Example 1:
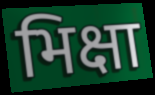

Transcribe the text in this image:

भिक्षा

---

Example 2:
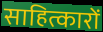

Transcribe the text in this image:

साहित्कारों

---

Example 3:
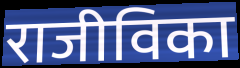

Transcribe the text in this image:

राजीविका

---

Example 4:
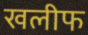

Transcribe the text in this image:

खलीफ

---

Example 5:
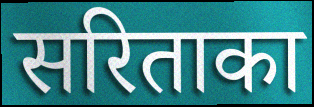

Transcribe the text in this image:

सरिताका